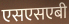
एसएसएबी